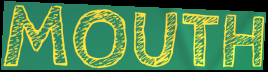
MOUTH